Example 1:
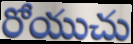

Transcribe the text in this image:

రోయుచు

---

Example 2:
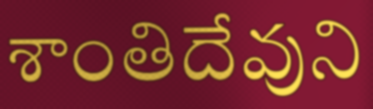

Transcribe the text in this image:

శాంతిదేవుని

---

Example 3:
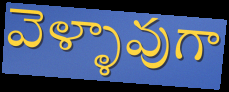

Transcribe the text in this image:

వెళ్ళావుగా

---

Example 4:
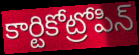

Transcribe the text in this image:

కార్టికోట్రోపిన్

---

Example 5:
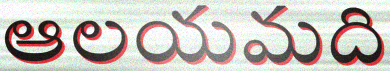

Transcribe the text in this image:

ఆలయమది